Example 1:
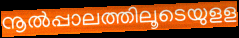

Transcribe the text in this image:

നൂൽപ്പാലത്തിലൂടെയുളള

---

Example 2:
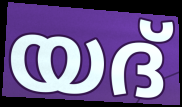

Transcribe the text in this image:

യദ്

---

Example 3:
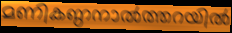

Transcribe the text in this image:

മണികണ്ഠനാൽത്തറയിൽ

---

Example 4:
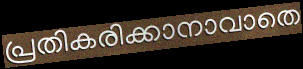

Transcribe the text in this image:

പ്രതികരിക്കാനാവാതെ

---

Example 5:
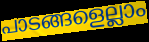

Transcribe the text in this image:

പാടങ്ങളെല്ലാം